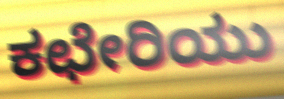
ಕಛೇರಿಯು